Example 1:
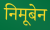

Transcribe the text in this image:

निमूबेन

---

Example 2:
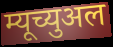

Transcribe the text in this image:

म्यूच्युअल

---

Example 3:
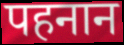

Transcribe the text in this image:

पहनान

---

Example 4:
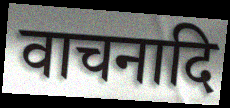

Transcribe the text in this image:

वाचनादि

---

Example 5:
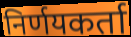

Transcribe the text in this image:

निर्णयकर्ता